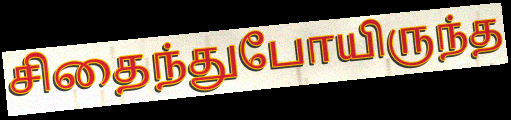
சிதைந்துபோயிருந்த